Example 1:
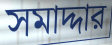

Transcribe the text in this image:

সমাদ্দার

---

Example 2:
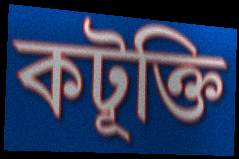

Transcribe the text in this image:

কটূক্তি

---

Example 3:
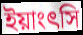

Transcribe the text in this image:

ইয়াংৎসি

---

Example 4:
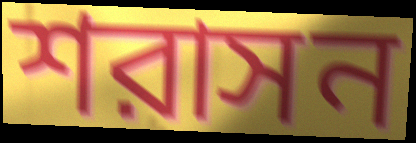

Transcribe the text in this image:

শরাসন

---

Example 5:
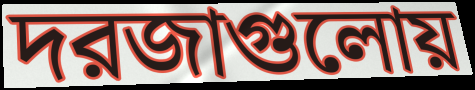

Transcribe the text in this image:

দরজাগুলোয়